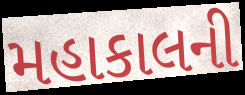
મહાકાલની